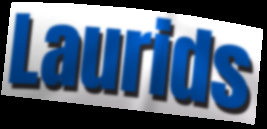
Laurids